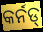
କର୍ନଡ୍